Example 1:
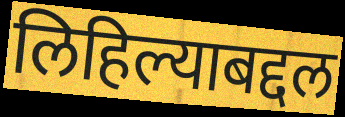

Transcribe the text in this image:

लिहिल्याबद्दल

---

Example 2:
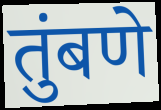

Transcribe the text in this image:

तुंबणे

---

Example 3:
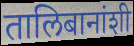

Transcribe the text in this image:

तालिबानांशी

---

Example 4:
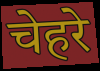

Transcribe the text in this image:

चेहरे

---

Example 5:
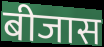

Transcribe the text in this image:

बीजास